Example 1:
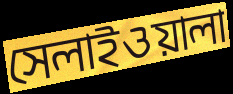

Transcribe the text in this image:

সেলাইওয়ালা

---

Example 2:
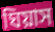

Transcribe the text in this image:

ঘিয়াস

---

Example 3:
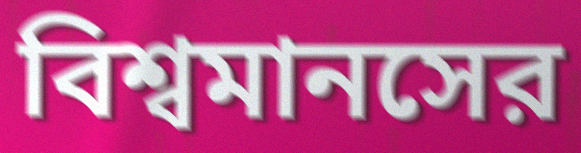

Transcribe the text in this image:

বিশ্বমানসের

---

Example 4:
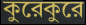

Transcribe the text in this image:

কুরেকুরে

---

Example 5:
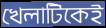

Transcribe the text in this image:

খেলাটিকেই